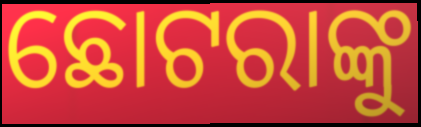
ଛୋଟରାଙ୍କୁ